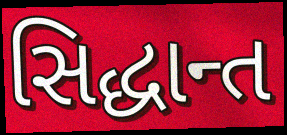
સિદ્ધાન્ત